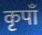
कृपाँ